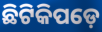
ଛିଟିକିପଡ଼େ